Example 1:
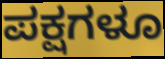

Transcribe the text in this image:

ಪಕ್ಷಗಳೂ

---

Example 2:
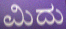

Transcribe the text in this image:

ಮಿದು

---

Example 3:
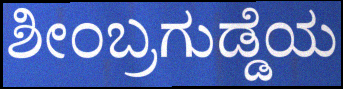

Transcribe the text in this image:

ಶೀಂಬ್ರಗುಡ್ಡೆಯ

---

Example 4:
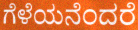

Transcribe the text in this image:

ಗೆಳೆಯನೆಂದರೆ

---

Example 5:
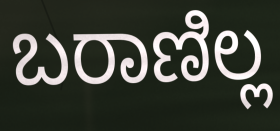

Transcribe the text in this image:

ಬರಾಣಿಲ್ಲ